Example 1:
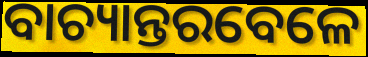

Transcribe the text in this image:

ବାଚ୍ୟାନ୍ତରବେଳେ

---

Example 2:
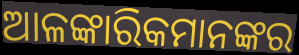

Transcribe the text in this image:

ଆଳଙ୍କାରିକମାନଙ୍କର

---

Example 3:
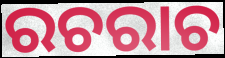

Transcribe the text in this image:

ରଚରାଚ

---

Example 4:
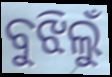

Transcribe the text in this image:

ବୁଝିଲୁଁ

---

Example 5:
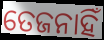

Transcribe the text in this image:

ତେଜନାହିଁ